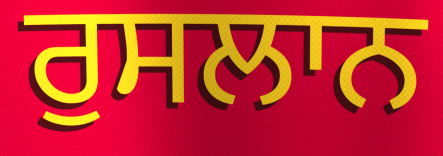
ਰੁਸਲਾਨ